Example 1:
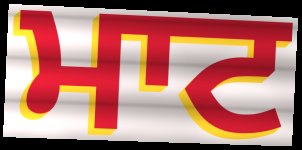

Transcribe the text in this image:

ਮਾਟ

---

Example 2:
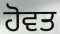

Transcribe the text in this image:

ਹੋਵਤ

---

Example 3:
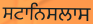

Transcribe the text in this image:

ਸਟਾਨਿਸਲਾਸ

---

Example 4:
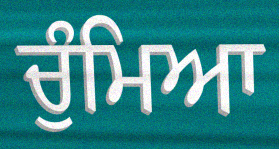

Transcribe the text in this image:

ਚੁੰਮਿਆ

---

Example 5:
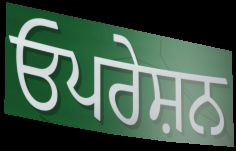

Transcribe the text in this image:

ਓਪਰੇਸ਼ਨ